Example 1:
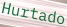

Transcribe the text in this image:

Hurtado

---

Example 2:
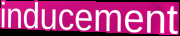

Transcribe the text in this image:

inducement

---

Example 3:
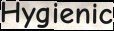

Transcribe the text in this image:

Hygienic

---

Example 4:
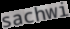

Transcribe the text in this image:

sachwi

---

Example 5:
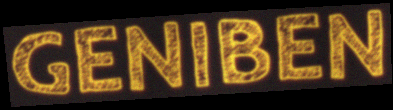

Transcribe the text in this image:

GENIBEN